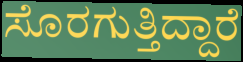
ಸೊರಗುತ್ತಿದ್ದಾರೆ